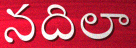
నదిలా